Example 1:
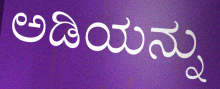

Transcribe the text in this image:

ಅಡಿಯನ್ನು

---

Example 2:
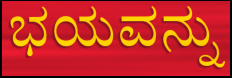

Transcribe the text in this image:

ಭಯವನ್ನು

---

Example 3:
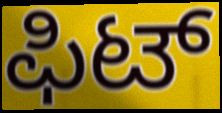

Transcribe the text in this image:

ಫಿಟ್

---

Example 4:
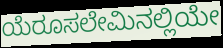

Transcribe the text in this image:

ಯೆರೂಸಲೇಮಿನಲ್ಲಿಯೇ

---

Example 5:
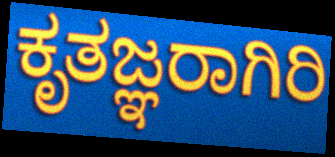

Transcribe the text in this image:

ಕೃತಜ್ಞರಾಗಿರಿ